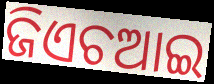
ଜିଏଚଆଇ